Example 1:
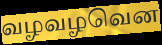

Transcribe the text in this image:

வழவழவென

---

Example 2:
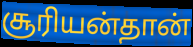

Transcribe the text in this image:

சூரியன்தான்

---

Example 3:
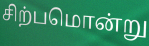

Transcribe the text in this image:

சிற்பமொன்று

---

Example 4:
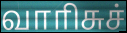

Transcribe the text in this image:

வாரிசுச்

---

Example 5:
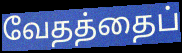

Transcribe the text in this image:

வேதத்தைப்